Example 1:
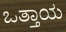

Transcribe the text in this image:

ಒತ್ತಾಯ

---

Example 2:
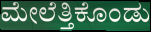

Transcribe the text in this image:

ಮೇಲೆತ್ತಿಕೊಂಡು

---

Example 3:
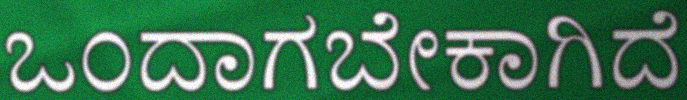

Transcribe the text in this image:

ಒಂದಾಗಬೇಕಾಗಿದೆ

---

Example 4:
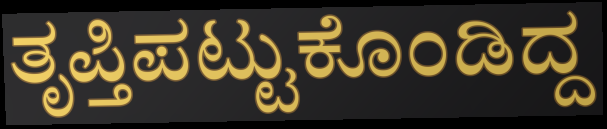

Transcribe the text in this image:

ತೃಪ್ತಿಪಟ್ಟುಕೊಂಡಿದ್ದ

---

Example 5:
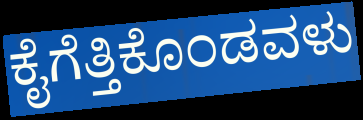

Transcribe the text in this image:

ಕೈಗೆತ್ತಿಕೊಂಡವಳು